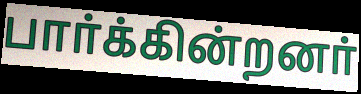
பார்க்கின்றனர்